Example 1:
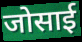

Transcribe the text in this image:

जोसाई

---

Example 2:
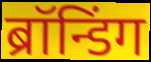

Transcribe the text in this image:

ब्रॉन्डिंग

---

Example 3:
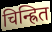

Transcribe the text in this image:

चिन्ह्रित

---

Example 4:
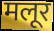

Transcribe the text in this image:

मलूर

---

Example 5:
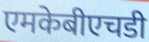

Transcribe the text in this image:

एमकेबीएचडी